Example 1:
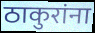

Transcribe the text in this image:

ठाकुरांना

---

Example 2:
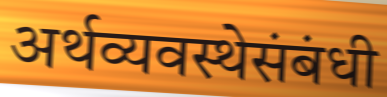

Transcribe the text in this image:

अर्थव्यवस्थेसंबंधी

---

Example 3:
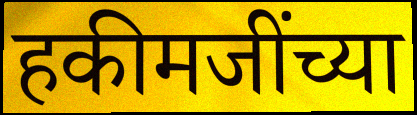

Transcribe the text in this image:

हकीमजींच्या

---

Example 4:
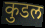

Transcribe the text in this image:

कुडल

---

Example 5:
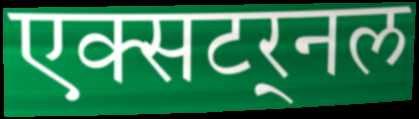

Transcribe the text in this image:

एक्सटर्नल